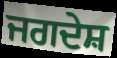
ਜਗਦੇਸ਼